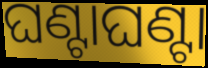
ଘଣ୍ଟାଘଣ୍ଟା